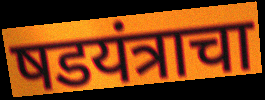
षडयंत्राचा